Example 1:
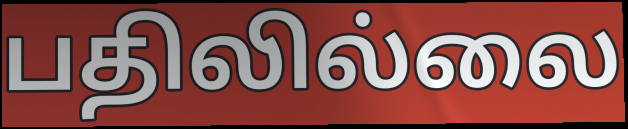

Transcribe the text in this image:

பதிலில்லை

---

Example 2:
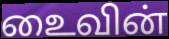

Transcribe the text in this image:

உைவின்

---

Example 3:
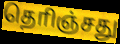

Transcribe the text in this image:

தெரிஞ்சது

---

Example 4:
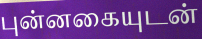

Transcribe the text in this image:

புன்னகையுடன்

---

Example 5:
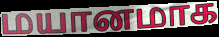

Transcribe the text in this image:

மயானமாக